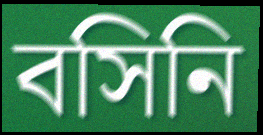
বসিনি